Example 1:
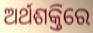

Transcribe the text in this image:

ଅର୍ଥଶକ୍ତିରେ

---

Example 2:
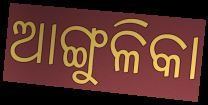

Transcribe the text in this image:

ଆଙ୍ଗୁଳିକା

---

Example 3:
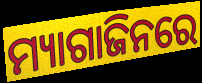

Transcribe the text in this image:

ମ୍ୟାଗାଜିନରେ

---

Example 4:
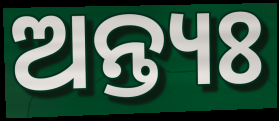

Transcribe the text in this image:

ଅନ୍ତ୍ୟଃ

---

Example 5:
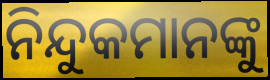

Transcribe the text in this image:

ନିନ୍ଦୁକମାନଙ୍କୁ